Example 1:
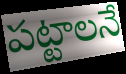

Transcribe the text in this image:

పట్టాలనే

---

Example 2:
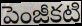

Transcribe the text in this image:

పెంజీకటి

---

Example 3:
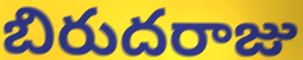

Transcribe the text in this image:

బిరుదరాజు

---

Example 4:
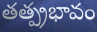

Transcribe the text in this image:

తత్ప్రభావం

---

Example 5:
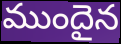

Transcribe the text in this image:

ముందైన